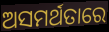
ଅସମର୍ଥତାରେ